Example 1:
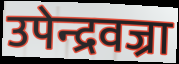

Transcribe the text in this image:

उपेन्द्रवज्रा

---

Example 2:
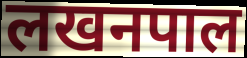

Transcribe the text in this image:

लखनपाल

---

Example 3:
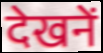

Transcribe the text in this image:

देखनें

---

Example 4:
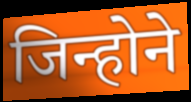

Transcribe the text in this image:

जिन्‍होने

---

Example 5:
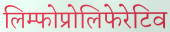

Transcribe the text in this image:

लिम्फोप्रोलिफेरेटिव